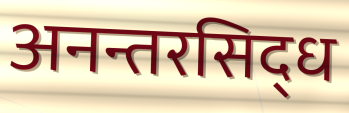
अनन्तरसिद्ध